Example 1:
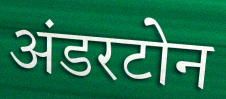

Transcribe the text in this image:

अंडरटोन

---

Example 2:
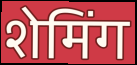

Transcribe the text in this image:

शेमिंग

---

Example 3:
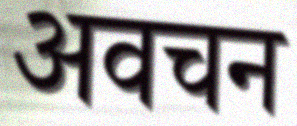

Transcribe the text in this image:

अवचन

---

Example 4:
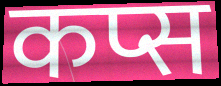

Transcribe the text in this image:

कप्स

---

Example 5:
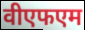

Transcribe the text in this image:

वीएफएम